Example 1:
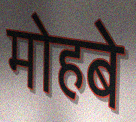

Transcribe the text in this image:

मोहबे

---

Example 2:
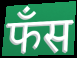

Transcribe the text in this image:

फँस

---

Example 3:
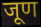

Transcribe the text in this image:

जूण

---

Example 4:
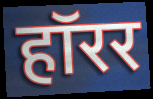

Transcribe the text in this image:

हॉरर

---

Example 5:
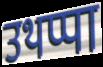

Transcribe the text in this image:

उथप्पा